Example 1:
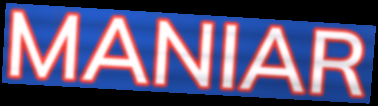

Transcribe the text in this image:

MANIAR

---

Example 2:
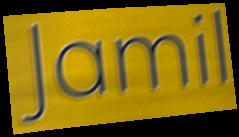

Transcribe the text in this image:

Jamil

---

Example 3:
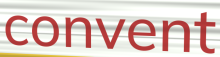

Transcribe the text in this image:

convent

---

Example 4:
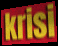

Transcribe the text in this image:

krisi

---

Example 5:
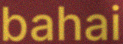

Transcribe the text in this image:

bahai